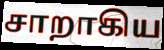
சாறாகிய